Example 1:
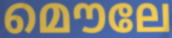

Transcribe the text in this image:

മൌലേ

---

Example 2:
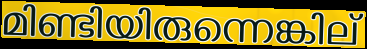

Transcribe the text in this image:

മിണ്ടിയിരുന്നെങ്കില്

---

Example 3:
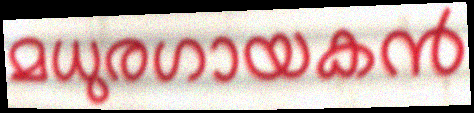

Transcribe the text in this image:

മധുരഗായകൻ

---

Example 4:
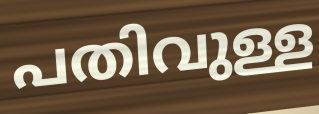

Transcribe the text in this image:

പതിവുള്ള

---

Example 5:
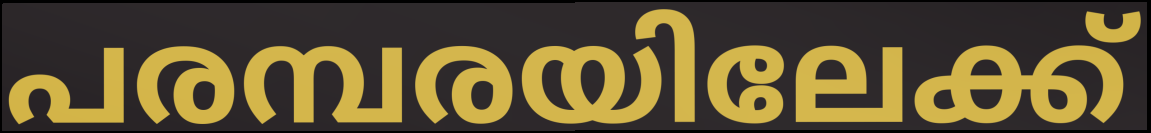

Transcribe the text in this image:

പരമ്പരയിലേക്ക്